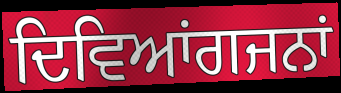
ਦਿਵਿਆਂਗਜਨਾਂ